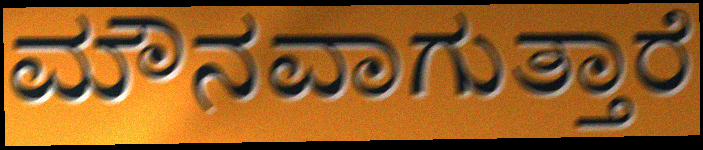
ಮೌನವಾಗುತ್ತಾರೆ